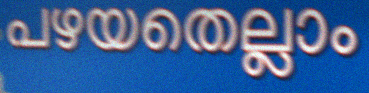
പഴയതെല്ലാം